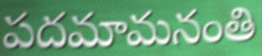
పదమామనంతి